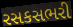
રસકસભરી